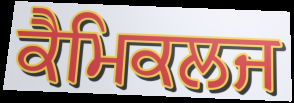
ਕੈਮਿਕਲਜ